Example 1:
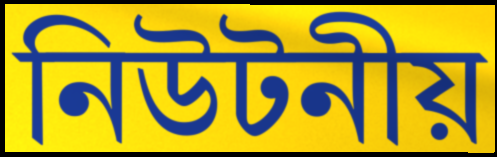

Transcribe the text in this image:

নিউটনীয়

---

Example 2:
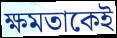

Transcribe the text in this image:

ক্ষমতাকেই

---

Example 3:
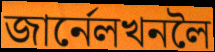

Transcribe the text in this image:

জাৰ্নেলখনলৈ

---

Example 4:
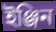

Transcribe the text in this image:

ইঞ্জিন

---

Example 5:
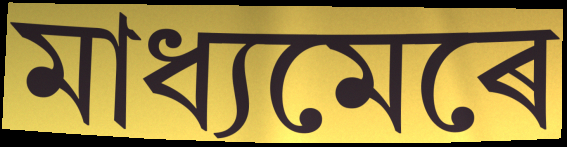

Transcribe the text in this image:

মাধ্যমেৰে